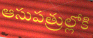
ఆసుపత్రుల్లోకి